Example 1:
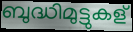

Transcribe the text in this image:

ബുദ്ധിമുട്ടുകള്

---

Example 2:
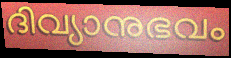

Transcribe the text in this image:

ദിവ്യാനുഭവം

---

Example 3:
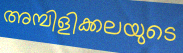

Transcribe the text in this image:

അമ്പിളിക്കലയുടെ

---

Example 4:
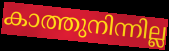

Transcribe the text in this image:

കാത്തുനിന്നില്ല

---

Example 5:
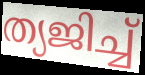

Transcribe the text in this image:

ത്യജിച്ച്